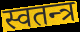
स्वतन्त्र